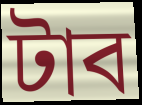
টাব